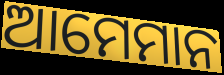
ଆମେମାନ